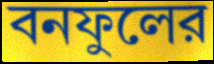
বনফুলের